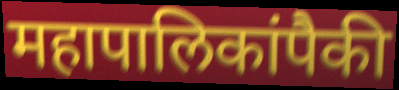
महापालिकांपैकी